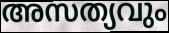
അസത്യവും